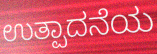
ಉತ್ಪಾದನೆಯ